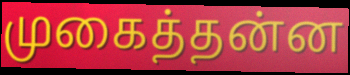
முகைத்தன்ன